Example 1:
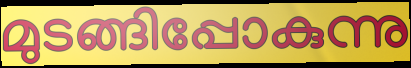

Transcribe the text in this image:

മുടങ്ങിപ്പോകുന്നു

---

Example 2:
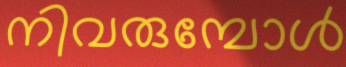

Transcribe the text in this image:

നിവരുമ്പോൾ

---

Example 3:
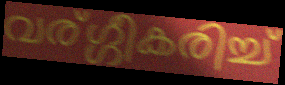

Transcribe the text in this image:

വര്ഗ്ഗീകരിച്ച്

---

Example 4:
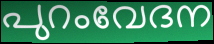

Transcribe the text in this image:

പുറംവേദന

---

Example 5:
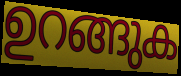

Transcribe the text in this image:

ഉറങ്ങുക